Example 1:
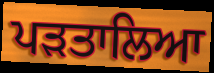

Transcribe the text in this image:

ਪੜਤਾਲਿਆ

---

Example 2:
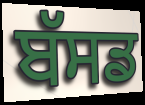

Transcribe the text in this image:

ਬੱਸਡ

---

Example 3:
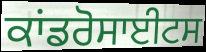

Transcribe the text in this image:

ਕਾਂਡਰੋਸਾਈਟਸ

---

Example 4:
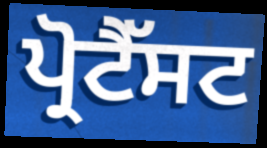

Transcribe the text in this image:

ਪ੍ਰੋਟੈੱਸਟ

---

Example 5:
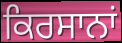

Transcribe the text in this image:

ਕਿਰਸਾਨਾਂ